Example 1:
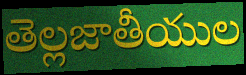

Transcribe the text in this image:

తెల్లజాతీయుల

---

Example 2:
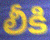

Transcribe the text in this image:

లీకి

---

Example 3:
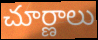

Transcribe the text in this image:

చూర్ణాలు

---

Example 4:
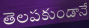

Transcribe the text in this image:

తెలపకుండానే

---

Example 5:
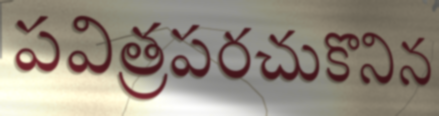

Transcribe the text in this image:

పవిత్రపరచుకొనిన